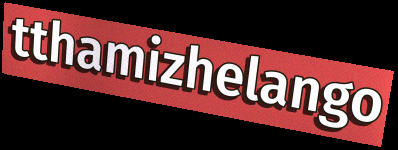
tthamizhelango